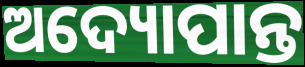
ଅଦ୍ୟୋପାନ୍ତ